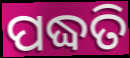
ପଦ୍ଧତି